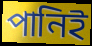
পানিই